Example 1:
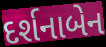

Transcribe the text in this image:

દર્શનાબેન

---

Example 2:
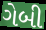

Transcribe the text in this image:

ગેબી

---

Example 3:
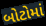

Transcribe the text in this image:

બોટોમાં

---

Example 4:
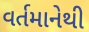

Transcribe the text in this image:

વર્તમાનેથી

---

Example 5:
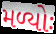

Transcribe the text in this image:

મળ્યોઃ